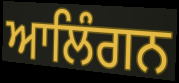
ਆਲਿੰਗਨ